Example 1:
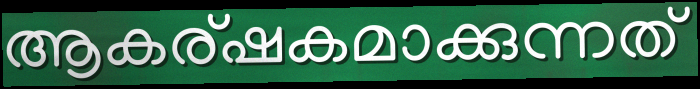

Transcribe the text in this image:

ആകര്ഷകമാക്കുന്നത്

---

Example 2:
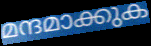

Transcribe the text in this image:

മന്ദമാക്കുക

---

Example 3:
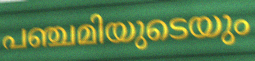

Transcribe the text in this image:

പഞ്ചമിയുടെയും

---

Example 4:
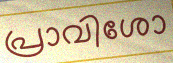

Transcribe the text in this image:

പ്രാവിശോ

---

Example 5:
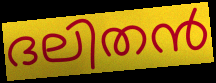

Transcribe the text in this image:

ദലിതൻ